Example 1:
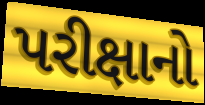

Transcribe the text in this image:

પરીક્ષાનો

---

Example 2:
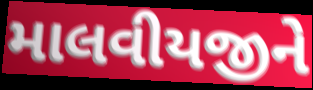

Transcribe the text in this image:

માલવીયજીને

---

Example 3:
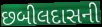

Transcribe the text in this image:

છબીલદાસની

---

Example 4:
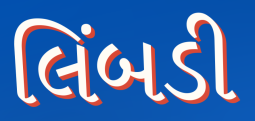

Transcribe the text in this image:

લિંબડી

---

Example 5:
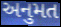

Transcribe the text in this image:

અનુમત